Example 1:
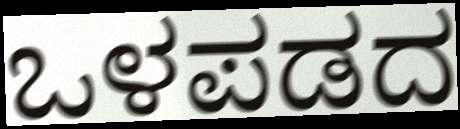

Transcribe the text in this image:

ಒಳಪಡದ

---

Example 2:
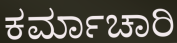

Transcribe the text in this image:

ಕರ್ಮಾಚಾರಿ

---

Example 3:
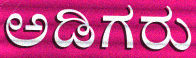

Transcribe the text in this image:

ಅಡಿಗರು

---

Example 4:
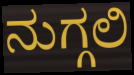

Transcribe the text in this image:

ನುಗ್ಗಲಿ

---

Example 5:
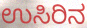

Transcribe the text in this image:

ಉಸಿರಿನ